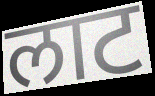
लाट